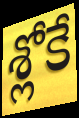
శ్లోకే